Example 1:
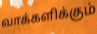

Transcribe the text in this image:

வாக்களிக்கும்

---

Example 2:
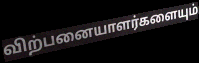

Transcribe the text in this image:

விற்பனையாளர்களையும்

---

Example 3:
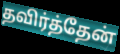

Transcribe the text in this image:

தவிர்த்தேன்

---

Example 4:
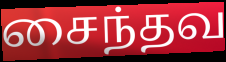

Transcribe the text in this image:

சைந்தவ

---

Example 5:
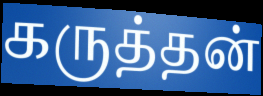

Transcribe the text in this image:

கருத்தன்